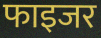
फाइजर